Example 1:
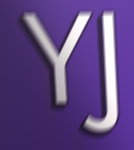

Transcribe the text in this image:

YJ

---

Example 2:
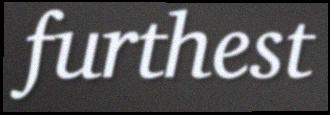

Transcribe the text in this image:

furthest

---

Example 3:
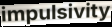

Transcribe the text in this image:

impulsivity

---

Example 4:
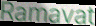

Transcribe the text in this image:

Ramavat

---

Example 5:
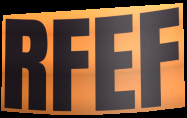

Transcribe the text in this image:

RFEF